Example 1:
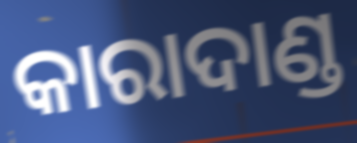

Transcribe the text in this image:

କାରାଦାଣ୍ଡ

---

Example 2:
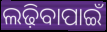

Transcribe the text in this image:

ଲଢ଼ିବାପାଇଁ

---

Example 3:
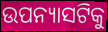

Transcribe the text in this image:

ଉପନ୍ୟାସଟିକୁ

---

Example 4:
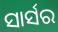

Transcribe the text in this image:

ସାର୍ସର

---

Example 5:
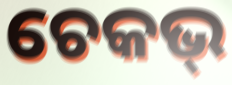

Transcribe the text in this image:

ଚେକଭ୍